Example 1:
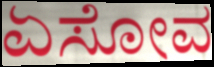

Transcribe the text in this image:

ಏಸೋವ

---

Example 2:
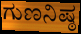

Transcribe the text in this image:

ಗುಣನಿಷ್ಠ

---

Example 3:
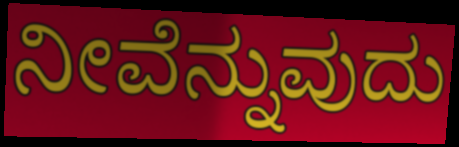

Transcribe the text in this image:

ನೀವೆನ್ನುವುದು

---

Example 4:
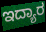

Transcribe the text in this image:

ಇದ್ಯಾರ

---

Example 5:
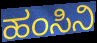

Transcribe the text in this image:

ಹಂಸಿನಿ